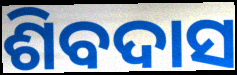
ଶିବଦାସ